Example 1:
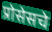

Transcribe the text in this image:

प्रोसेसचे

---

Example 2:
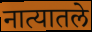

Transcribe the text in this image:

नात्यातले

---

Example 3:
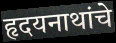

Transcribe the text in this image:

हृदयनाथांचे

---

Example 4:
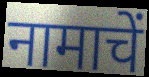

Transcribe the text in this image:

नामाचें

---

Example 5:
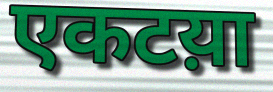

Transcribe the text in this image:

एकटय़ा